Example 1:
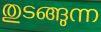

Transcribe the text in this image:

തുടങ്ങുന്ന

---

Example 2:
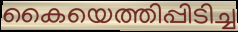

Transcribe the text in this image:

കൈയെത്തിപ്പിടിച്ച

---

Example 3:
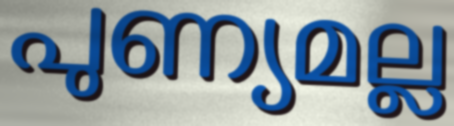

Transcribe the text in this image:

പുണ്യമല്ല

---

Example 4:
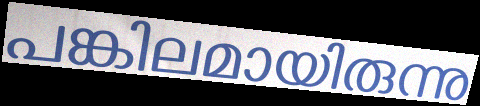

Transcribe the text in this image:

പങ്കിലമായിരുന്നു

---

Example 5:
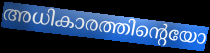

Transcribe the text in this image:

അധികാരത്തിന്റെയോ